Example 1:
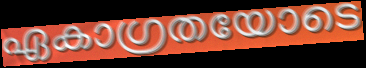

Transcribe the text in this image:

ഏകാഗ്രതയോടെ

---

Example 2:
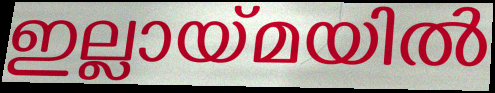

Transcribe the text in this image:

ഇല്ലായ്മയിൽ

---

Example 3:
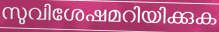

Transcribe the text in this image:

സുവിശേഷമറിയിക്കുക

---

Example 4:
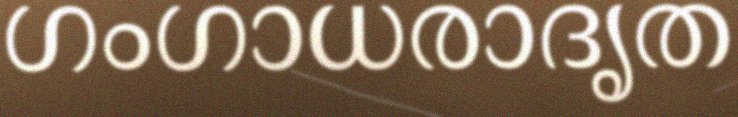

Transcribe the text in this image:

ഗംഗാധരാദൃത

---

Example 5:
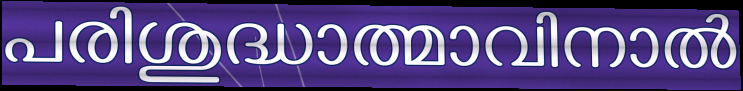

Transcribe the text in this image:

പരിശുദ്ധാത്മാവിനാൽ